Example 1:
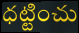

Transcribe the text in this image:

ధట్టించు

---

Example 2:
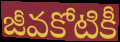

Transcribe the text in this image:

జీవకోటికీ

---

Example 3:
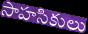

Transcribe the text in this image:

సాహసికులు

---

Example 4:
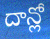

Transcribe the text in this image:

దాన్లో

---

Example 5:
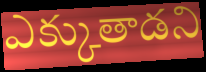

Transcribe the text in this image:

ఎక్కుతాడని